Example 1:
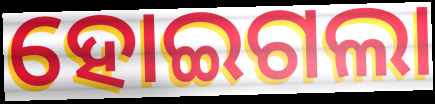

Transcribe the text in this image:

ହୋଇଗଲା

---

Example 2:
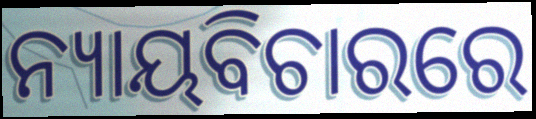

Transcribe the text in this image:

ନ୍ୟାୟବିଚାରରେ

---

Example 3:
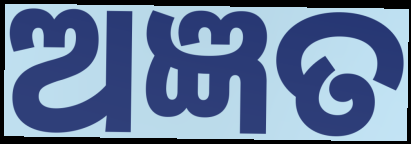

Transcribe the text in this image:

ଅଜ୍ଞତ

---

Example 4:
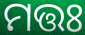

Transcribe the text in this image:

ମତ୍ତଃ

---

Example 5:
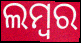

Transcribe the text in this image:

ଲମ୍ୱର